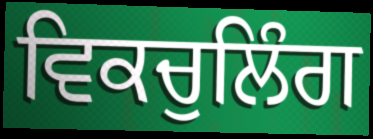
ਵਿਕਚੁਲਿੰਗ